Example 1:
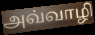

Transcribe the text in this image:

அவ்வாழி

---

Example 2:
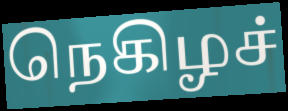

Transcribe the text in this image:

நெகிழச்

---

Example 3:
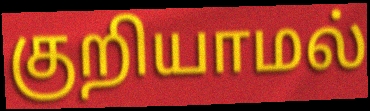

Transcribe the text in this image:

குறியாமல்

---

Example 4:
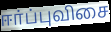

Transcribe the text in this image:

ஈர்ப்புவிசை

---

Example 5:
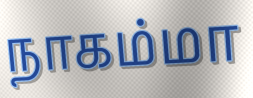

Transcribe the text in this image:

நாகம்மா